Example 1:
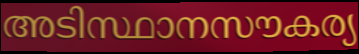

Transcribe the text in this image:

അടിസ്ഥാനസൗകര്യ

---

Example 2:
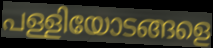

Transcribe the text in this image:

പള്ളിയോടങ്ങളെ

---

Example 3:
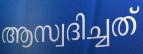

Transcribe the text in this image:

ആസ്വദിച്ചത്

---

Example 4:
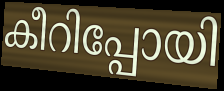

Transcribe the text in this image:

കീറിപ്പോയി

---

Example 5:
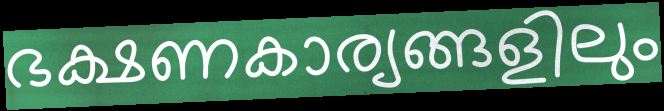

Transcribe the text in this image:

ഭക്ഷണകാര്യങ്ങളിലും